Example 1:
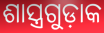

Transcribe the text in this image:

ଶାସ୍ତ୍ରଗୁଡ଼ାକ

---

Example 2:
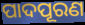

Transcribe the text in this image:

ପାଦପୂରଣ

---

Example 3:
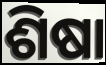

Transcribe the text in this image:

ଶିଷା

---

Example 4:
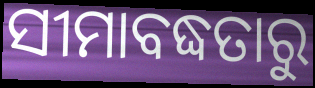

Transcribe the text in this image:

ସୀମାବଦ୍ଧତାରୁ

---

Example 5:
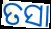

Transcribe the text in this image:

ତସା